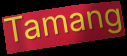
Tamang